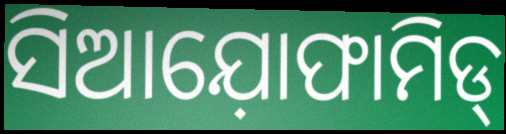
ସିଆଯ଼ୋଫାମିଡ୍